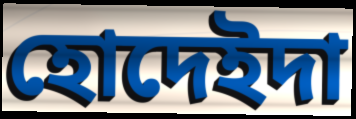
হোদেইদা